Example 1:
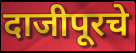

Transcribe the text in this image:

दाजीपूरचे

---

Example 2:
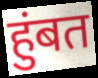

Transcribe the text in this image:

हुंबत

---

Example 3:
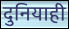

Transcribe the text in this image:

दुनियाही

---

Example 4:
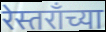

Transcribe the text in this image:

रेस्तराँच्या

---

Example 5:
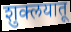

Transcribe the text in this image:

शुक्लयातू